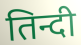
तिन्दी